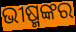
ଭୀଷ୍ମଙ୍କର